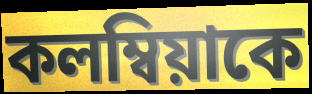
কলম্বিয়াকে